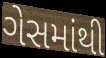
ગેસમાંથી